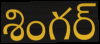
శింగర్